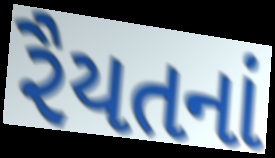
રૈયતનાં